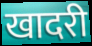
खादरी